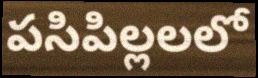
పసిపిల్లలలో